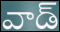
వాడ్